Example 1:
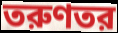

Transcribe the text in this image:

তরুণতর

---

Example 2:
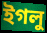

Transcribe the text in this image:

ইগলু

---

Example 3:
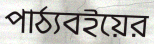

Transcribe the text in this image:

পাঠ্যবইয়ের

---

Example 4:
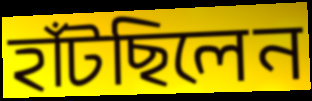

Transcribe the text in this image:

হাঁটছিলেন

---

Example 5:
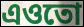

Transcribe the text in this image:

এওতো